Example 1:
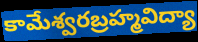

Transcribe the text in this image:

కామేశ్వరబ్రహ్మవిద్యా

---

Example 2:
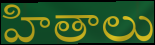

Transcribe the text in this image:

హితాలు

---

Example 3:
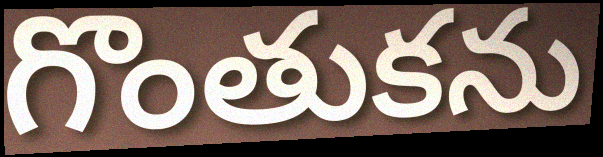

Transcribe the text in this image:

గొంతుకను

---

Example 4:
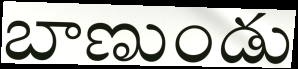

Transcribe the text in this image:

బాణుండు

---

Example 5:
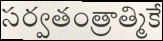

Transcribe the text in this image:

సర్వతంత్రాత్మికే